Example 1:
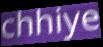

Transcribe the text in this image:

chhiye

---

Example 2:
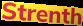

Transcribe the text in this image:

Strenth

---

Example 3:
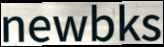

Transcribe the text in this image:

newbks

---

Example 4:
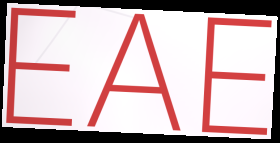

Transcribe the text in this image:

EAE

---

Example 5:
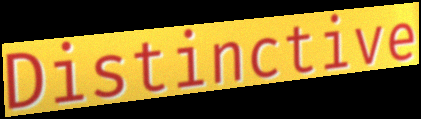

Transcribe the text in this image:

Distinctive